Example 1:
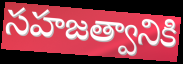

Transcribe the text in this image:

సహజత్వానికి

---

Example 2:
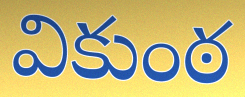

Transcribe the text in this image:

వికుంఠ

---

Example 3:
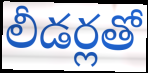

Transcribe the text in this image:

లీడర్లతో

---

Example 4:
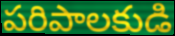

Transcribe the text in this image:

పరిపాలకుడి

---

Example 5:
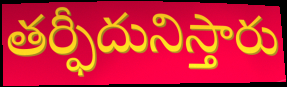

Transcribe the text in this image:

తర్ఫీదునిస్తారు